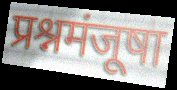
प्रश्नमंजूषा